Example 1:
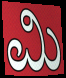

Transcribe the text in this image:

ಮಿ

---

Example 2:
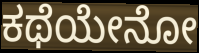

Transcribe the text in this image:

ಕಥೆಯೇನೋ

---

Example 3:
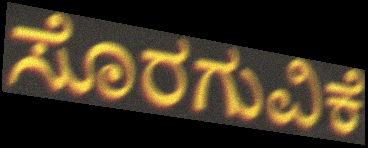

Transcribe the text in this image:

ಸೊರಗುವಿಕೆ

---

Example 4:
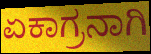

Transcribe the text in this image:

ಏಕಾಗ್ರನಾಗಿ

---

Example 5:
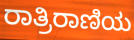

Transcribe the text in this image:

ರಾತ್ರಿರಾಣಿಯ